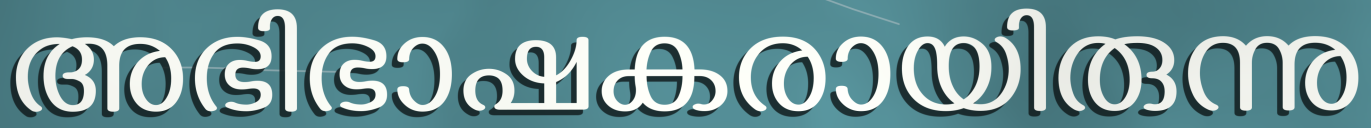
അഭിഭാഷകരായിരുന്നു